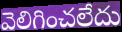
వెలిగించలేదు